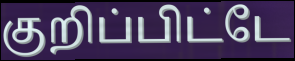
குறிப்பிட்டே